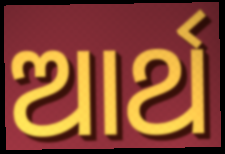
ଆର୍ଥ